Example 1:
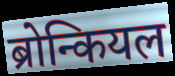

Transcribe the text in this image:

ब्रोन्कियल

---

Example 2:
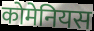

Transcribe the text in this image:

कोमेनियस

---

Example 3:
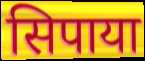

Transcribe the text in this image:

सिपाया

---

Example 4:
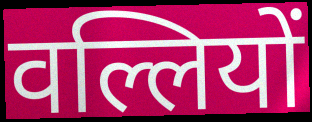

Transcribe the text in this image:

वल्लियों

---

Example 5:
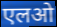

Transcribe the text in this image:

एलओ